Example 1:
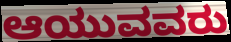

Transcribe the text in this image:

ಆಯುವವರು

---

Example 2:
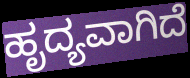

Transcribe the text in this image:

ಹೃದ್ಯವಾಗಿದೆ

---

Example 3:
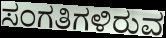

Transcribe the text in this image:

ಸಂಗತಿಗಳಿರುವ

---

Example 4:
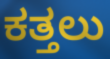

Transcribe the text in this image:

ಕತ್ತಲು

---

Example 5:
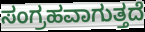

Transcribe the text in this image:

ಸಂಗ್ರಹವಾಗುತ್ತದೆ